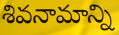
శివనామాన్ని